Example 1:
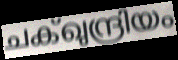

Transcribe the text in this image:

ചക്ഖുന്ദ്രിയം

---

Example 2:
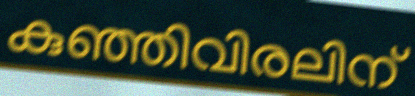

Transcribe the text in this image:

കുഞ്ഞിവിരലിന്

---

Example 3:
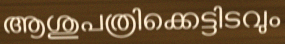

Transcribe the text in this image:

ആശുപത്രിക്കെട്ടിടവും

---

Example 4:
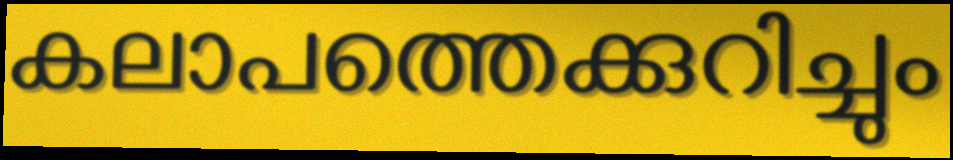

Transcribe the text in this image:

കലാപത്തെക്കുറിച്ചും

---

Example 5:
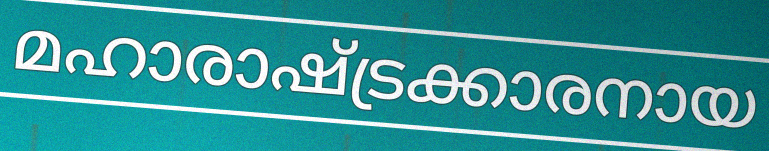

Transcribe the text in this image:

മഹാരാഷ്ട്രക്കാരനായ